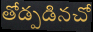
తోడ్పడినచో